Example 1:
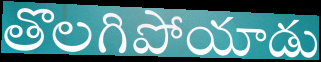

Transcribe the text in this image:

తొలగిపోయాడు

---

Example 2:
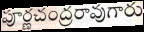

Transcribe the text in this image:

పూర్ణచంద్రరావుగారు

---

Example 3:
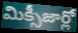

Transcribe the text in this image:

మిక్సీజార్లో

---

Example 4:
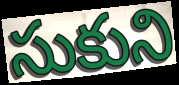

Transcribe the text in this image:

సుకుని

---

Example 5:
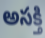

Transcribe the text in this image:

అసక్తి